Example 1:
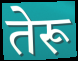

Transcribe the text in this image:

तेरू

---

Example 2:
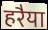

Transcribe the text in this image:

हरैया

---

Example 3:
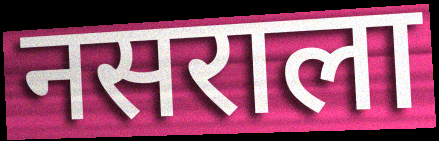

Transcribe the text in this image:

नसराला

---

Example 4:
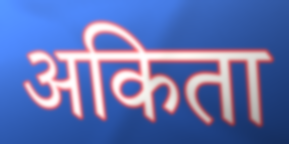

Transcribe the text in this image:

अकिता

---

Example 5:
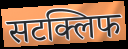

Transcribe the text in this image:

सटक्लिफ